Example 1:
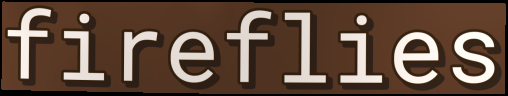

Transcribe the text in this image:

fireflies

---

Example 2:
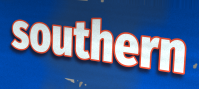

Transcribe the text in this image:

southern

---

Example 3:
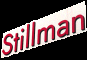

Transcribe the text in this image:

Stillman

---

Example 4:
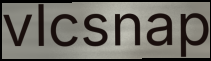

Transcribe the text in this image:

vlcsnap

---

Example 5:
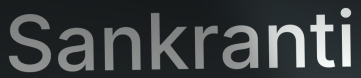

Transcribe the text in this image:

Sankranti